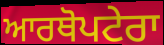
ਆਰਥੋਪਟੇਰਾ